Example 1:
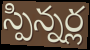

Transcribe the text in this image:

స్పిన్నర్ల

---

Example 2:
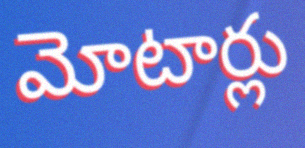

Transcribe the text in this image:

మోటార్లు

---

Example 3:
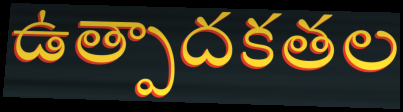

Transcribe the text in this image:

ఉత్పాదకతల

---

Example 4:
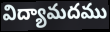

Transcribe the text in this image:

విద్యామదము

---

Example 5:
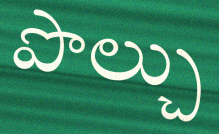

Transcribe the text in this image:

పొల్చు